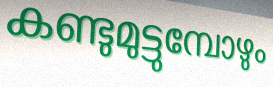
കണ്ടുമുട്ടുമ്പോഴും